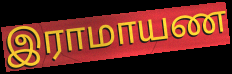
இராமாயண